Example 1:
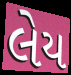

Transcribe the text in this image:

લેય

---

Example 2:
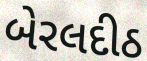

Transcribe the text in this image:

બેરલદીઠ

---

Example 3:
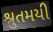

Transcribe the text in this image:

શ્રુતમયી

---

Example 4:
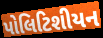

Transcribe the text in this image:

પોલિટિશીયન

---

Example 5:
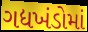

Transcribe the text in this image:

ગદ્યખંડોમાં